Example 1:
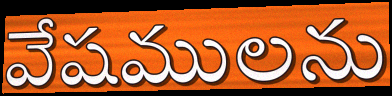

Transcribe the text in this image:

వేషములను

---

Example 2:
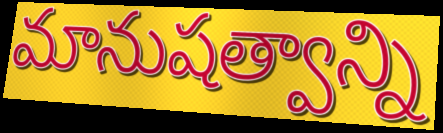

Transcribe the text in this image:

మానుషత్వాన్ని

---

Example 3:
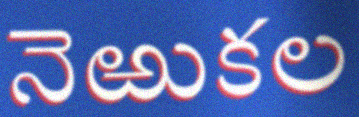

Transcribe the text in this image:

నెఱుకల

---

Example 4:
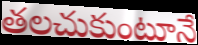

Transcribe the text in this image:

తలచుకుంటూనే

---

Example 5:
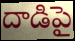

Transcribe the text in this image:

దాడిపై